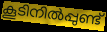
കൂടിനിൽപ്പുണ്ട്